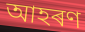
আহৰণ